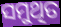
ସମୁଥିତ